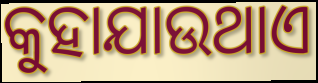
କୁହାଯାଉଥାଏ